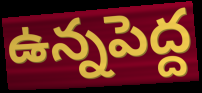
ఉన్నపెద్ద